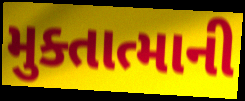
મુક્તાત્માની